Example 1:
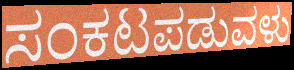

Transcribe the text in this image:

ಸಂಕಟಪಡುವಳು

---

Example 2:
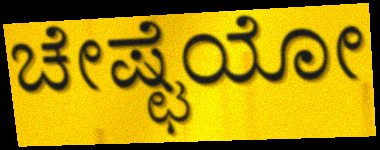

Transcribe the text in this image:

ಚೇಷ್ಟೆಯೋ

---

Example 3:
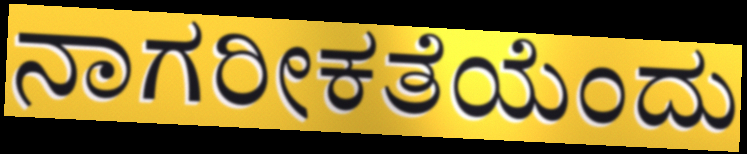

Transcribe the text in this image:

ನಾಗರೀಕತೆಯೆಂದು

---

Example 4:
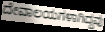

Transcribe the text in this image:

ದೇವಾಲಯಗಳಾಗಿದ್ದವು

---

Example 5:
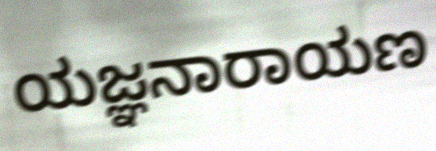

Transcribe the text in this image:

ಯಜ್ಞನಾರಾಯಣ